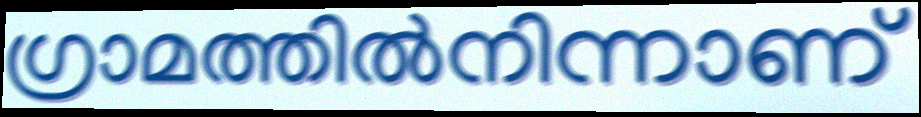
ഗ്രാമത്തിൽനിന്നാണ്